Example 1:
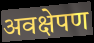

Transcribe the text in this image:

अवक्षेपण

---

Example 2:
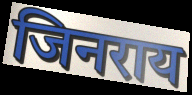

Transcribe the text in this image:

जिनराय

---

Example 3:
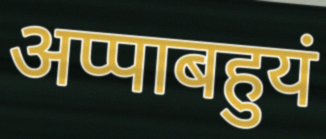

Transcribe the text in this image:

अप्पाबहुयं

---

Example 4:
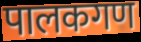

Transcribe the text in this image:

पालकगण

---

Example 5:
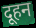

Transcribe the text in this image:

दूहन